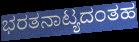
ಭರತನಾಟ್ಯದಂತಹ